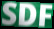
SDF